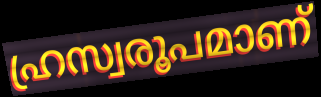
ഹ്രസ്വരൂപമാണ്